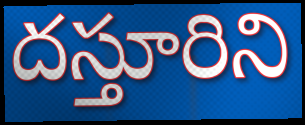
దస్తూరిని